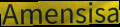
Amensisa